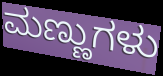
ಮಣ್ಣುಗಳು